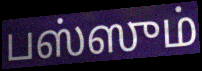
பஸ்ஸும்